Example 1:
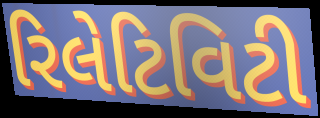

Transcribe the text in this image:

રિલેટિવિટી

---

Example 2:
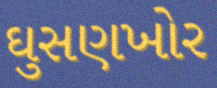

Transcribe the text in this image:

ઘુસણખોર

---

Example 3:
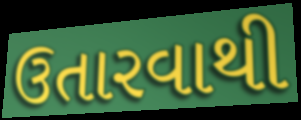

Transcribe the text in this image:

ઉતારવાથી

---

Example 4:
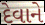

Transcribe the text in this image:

દેવાને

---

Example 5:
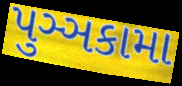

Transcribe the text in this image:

પુઞ્ઞકામા